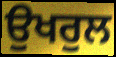
ਉਖਰੁਲ